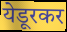
येडूरकर